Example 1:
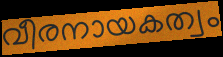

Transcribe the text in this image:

വീരനായകത്വം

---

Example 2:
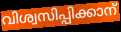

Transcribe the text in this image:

വിശ്വസിപ്പിക്കാന്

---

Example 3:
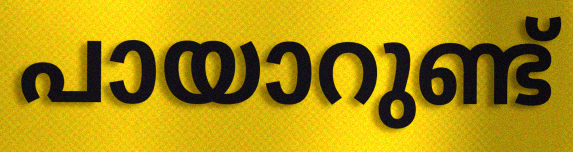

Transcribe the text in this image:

പായാറുണ്ട്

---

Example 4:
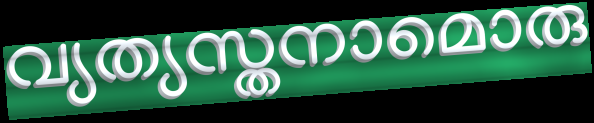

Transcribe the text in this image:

വ്യത്യസ്തനാമൊരു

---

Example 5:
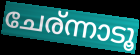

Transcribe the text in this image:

ചേര്ന്നാടൂ